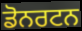
ਡੋਨਰਟਨ